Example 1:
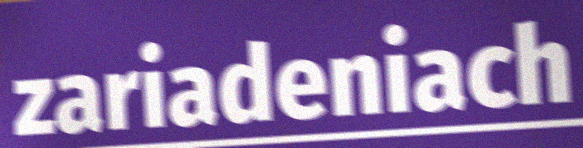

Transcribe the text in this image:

zariadeniach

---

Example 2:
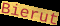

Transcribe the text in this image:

Bierut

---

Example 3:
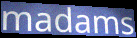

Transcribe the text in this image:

madams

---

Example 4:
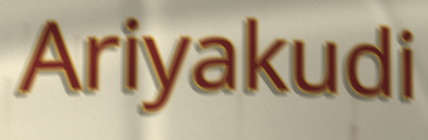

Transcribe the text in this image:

Ariyakudi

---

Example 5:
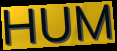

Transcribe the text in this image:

HUM